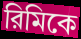
রিমিকে